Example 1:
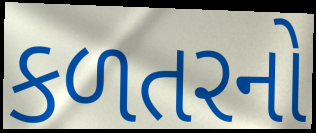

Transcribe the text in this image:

કળતરનો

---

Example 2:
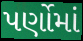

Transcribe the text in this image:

પર્ણોમાં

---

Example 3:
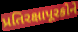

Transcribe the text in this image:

પ્રતિરક્ષાપૂરકોને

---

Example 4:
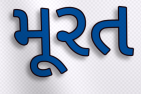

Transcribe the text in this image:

મૂરત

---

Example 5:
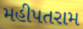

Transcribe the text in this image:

મહીપતરામ